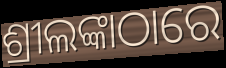
ଶ୍ରୀଲଙ୍କାଠାରେ